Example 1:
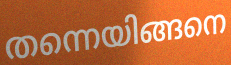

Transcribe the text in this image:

തന്നെയിങ്ങനെ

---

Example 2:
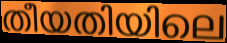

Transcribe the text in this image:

തീയതിയിലെ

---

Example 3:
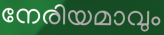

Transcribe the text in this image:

നേരിയമാവും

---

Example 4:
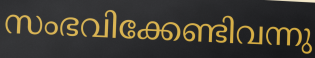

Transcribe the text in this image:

സംഭവിക്കേണ്ടിവന്നു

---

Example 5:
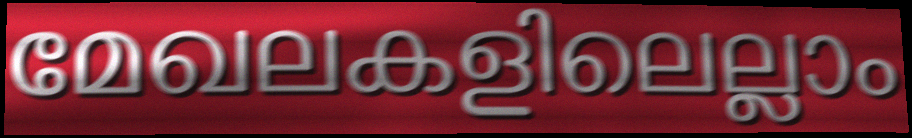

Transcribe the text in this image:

മേഖലകളിലെല്ലാം